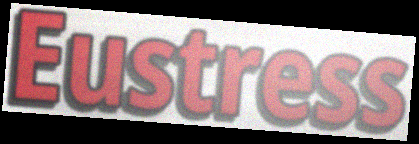
Eustress